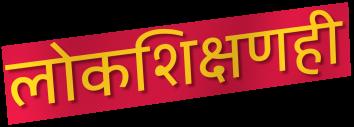
लोकशिक्षणही